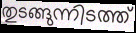
തുടങ്ങുന്നിടത്ത്